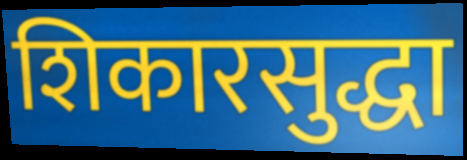
शिकारसुद्धा